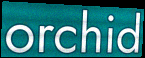
orchid